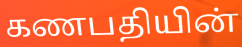
கணபதியின்